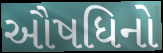
ઔષધિનો